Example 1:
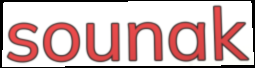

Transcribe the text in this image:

sounak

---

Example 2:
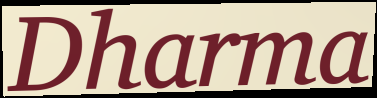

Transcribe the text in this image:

Dharma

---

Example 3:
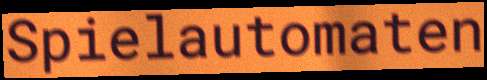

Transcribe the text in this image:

Spielautomaten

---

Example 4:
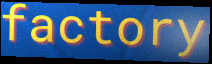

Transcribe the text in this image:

factory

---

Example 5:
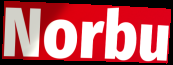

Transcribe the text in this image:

Norbu